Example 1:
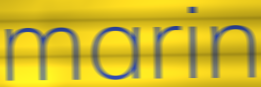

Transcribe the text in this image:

marin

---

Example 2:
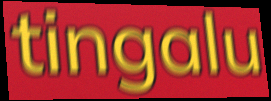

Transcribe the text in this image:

tingalu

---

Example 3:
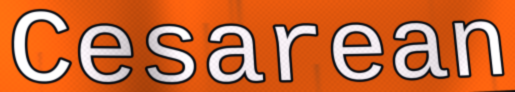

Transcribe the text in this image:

Cesarean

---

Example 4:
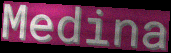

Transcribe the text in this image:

Medina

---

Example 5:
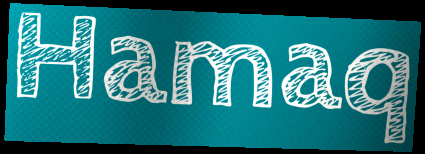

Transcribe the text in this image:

Hamaq